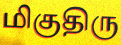
மிகுதிரு